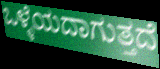
ಒಳ್ಳೆಯದಾಗುತ್ತದೆ